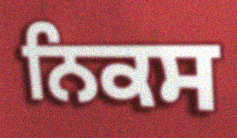
ਨਿਕਸ